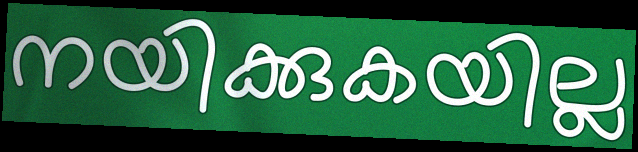
നയിക്കുകയില്ല